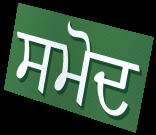
ਸਮੋਦ